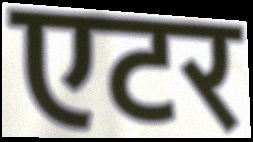
एटर